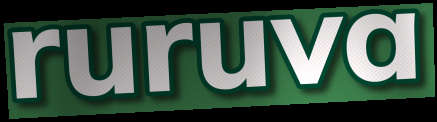
ruruva